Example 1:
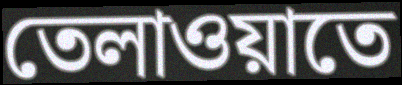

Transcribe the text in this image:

তেলাওয়াতে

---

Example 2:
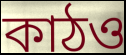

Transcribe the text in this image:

কাঠও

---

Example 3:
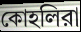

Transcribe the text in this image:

কোহলিরা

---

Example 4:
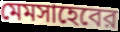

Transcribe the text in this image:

মেমসাহেবের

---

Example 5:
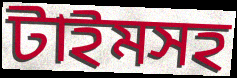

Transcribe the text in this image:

টাইমসহ